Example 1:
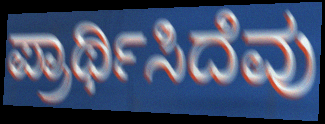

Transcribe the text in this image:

ಪ್ರಾರ್ಥಿಸಿದೆವು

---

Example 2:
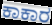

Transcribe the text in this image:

ಕಾಕಾರ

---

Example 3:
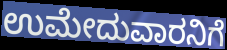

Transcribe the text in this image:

ಉಮೇದುವಾರನಿಗೆ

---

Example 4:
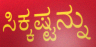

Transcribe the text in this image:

ಸಿಕ್ಕಷ್ಟನ್ನು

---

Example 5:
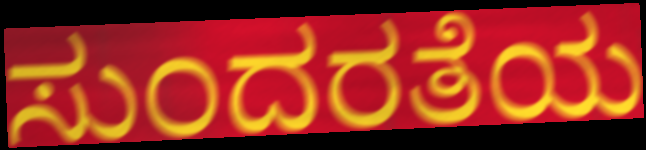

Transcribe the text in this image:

ಸುಂದರತೆಯ